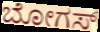
ಬೋಗಸ್